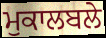
ਮੁਕਾਲਬਲੇ